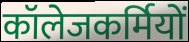
कॉलेजकर्मियों